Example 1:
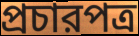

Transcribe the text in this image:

প্রচারপত্র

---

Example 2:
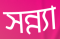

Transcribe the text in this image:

সন্ন্যা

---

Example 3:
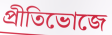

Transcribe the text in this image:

প্রীতিভোজে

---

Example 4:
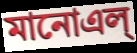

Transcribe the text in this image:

মানোএল্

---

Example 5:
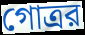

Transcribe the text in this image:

গোত্রর